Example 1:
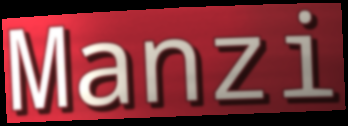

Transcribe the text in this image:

Manzi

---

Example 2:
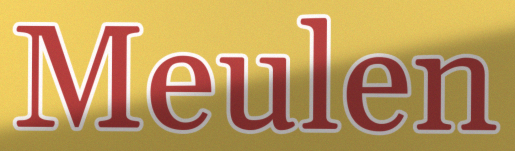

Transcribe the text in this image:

Meulen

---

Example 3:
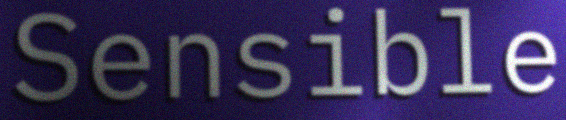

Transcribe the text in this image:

Sensible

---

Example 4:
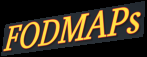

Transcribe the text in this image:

FODMAPs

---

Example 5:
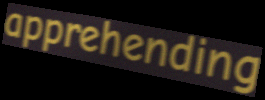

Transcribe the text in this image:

apprehending